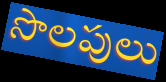
సొలపులు